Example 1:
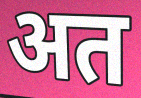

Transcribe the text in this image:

अत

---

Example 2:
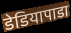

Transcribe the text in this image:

डेडियापाडा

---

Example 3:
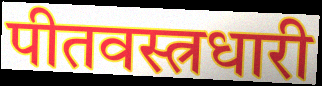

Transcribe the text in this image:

पीतवस्त्रधारी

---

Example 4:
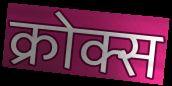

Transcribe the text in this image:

क्रोक्स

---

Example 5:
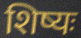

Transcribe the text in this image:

शिष्यः